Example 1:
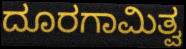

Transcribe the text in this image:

ದೂರಗಾಮಿತ್ವ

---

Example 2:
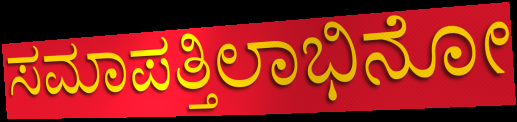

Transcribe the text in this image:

ಸಮಾಪತ್ತಿಲಾಭಿನೋ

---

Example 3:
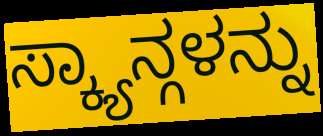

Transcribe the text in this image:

ಸ್ಕ್ಯಾನ್ಗಳನ್ನು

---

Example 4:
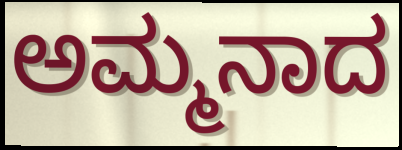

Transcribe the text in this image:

ಅಮ್ಮನಾದ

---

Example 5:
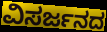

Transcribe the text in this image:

ವಿಸರ್ಜನದ